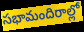
సభామందిరాల్లో